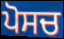
ਪੋਸਚ